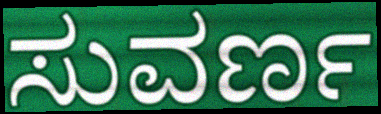
ಸುವರ್ಣ